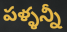
పళ్ళన్నీ